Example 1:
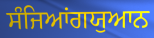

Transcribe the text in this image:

ਸੰਜਿਆਂਗਯੁਆਨ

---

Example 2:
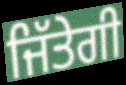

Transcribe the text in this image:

ਜਿੱਤੇਗੀ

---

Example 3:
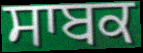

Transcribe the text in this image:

ਸਾਬਕ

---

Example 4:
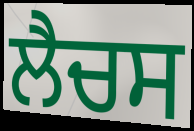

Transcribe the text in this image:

ਲੈਚਸ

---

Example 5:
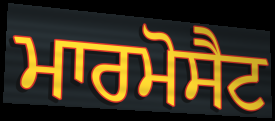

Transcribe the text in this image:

ਮਾਰਮੋਸੈਟ